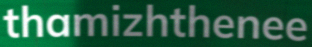
thamizhthenee